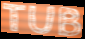
TUB